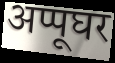
अप्पूघर